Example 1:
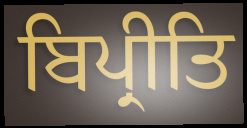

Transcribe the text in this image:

ਬਿਪ੍ਰੀਤਿ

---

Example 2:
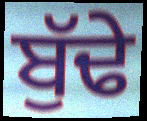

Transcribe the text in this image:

ਬੁੱਢੇ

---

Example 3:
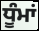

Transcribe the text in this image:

ਧੂੰਮਾਂ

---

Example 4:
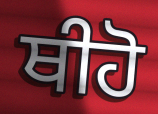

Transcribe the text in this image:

ਥੀਹੋ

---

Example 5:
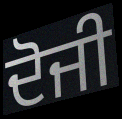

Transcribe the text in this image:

ਦੋਜੀ